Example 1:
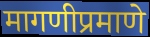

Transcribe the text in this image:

मागणीप्रमाणे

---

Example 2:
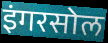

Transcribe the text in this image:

इंगरसोल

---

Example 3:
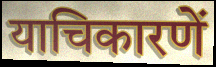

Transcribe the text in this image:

याचिकारणें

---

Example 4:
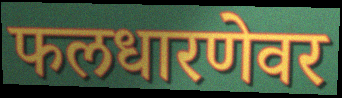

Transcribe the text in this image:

फलधारणेवर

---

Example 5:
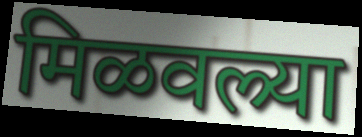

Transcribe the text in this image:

मिळवल्या